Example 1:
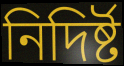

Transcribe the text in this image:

নিদিৰ্ষ্ট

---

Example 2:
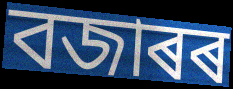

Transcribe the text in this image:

বজাৰৰ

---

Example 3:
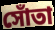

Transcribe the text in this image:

সোঁতা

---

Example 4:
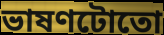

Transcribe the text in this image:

ভাষণটোতো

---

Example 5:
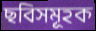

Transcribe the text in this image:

ছবিসমূহক